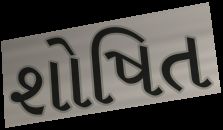
શોષિત